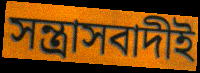
সন্ত্রাসবাদীই